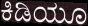
ಕಿಡಿಯೂ